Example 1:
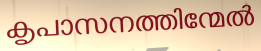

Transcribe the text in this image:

കൃപാസനത്തിന്മേൽ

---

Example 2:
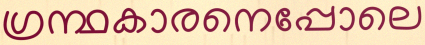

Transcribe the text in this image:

ഗ്രന്ഥകാരനെപ്പോലെ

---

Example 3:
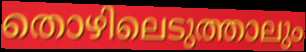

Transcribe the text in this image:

തൊഴിലെടുത്താലും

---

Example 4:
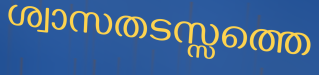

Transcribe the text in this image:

ശ്വാസതടസ്സത്തെ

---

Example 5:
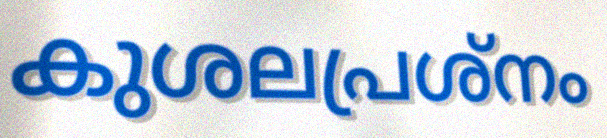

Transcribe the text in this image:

കുശലപ്രശ്നം